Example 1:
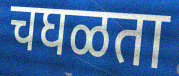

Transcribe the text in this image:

चघळता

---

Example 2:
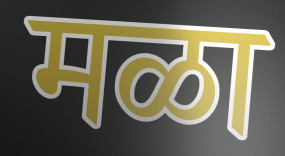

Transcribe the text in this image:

मळा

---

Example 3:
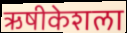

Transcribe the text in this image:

ऋषीकेशला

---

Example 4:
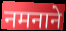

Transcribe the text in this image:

नमनाने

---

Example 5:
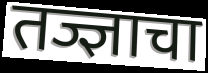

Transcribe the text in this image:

तज्ज्ञाचा